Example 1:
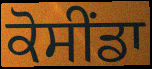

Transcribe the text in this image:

ਕੋਸੀਂਡਾ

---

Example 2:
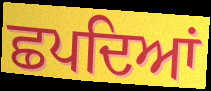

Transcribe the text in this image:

ਛਪਦਿਆਂ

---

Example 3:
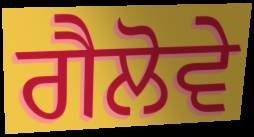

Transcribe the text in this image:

ਗੈਲੋਵੇ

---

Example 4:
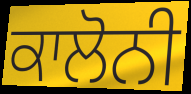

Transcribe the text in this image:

ਕਾਲੋਨੀ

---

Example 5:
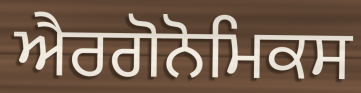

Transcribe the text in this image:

ਐਰਗੋਨੋਮਿਕਸ